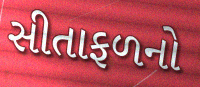
સીતાફળનો